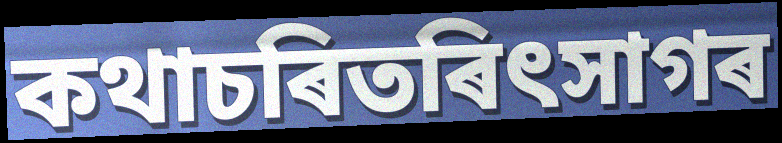
কথাচৰিতৰিৎসাগৰ